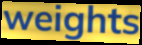
weights